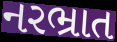
નરભ્રાત